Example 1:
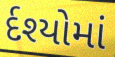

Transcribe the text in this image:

ર્દશ્યોમાં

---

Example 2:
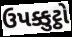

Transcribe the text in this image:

ઉપક્કુટ્ઠો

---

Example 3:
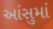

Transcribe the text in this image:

આંસુમાં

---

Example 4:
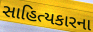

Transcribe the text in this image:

સાહિત્યકારના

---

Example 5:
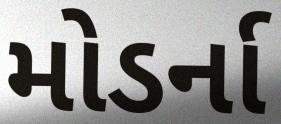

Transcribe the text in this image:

મોડર્ના